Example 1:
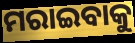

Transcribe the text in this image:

ମରାଇବାକୁ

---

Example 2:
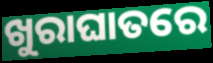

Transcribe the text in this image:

ଖୁରାଘାତରେ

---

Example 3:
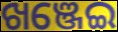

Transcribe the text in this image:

ଖଞ୍ଜେଇ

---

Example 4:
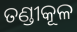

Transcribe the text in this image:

ତଣ୍ଡୀକୂଳ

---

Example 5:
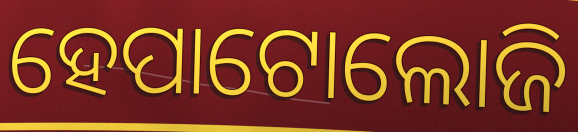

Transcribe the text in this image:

ହେପାଟୋଲୋଜି